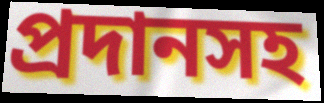
প্রদানসহ